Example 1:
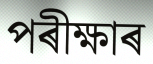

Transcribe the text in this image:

পৰীক্ষাৰ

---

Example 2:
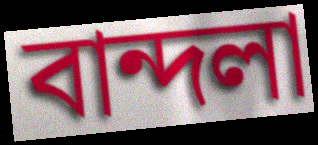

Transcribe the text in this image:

বান্দলা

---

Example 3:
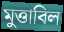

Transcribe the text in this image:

মুত্তাবিল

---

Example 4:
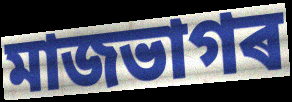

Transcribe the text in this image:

মাজভাগৰ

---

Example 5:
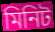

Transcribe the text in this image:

মিনিট